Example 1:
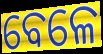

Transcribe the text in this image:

ବେଳେ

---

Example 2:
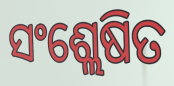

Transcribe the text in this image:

ସଂଶ୍ଲେଷିତ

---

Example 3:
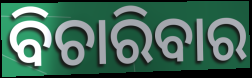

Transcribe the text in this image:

ବିଚାରିବାର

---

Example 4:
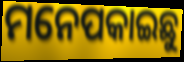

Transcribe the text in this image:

ମନେପକାଇଛୁ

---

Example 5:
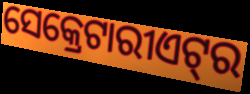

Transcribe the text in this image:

ସେକ୍ରେଟାରୀଏଟ୍‍ର